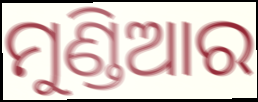
ମୁଣ୍ଡିଆର